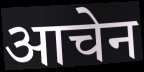
आचेन